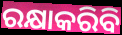
ରକ୍ଷାକରିବି